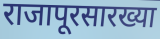
राजापूरसारख्या